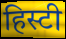
हिस्टी